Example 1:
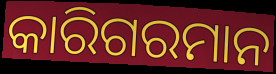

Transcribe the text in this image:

କାରିଗରମାନ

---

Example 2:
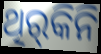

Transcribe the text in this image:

ଥିର୍‍କିନି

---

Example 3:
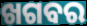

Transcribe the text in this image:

ଖଗବର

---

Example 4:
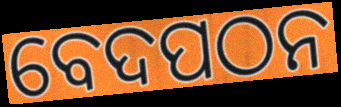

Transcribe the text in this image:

ବେଦପଠନ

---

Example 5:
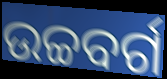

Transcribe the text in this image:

ଉଚ୍ଚବର୍ଗ